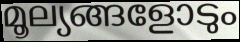
മൂല്യങ്ങളോടും